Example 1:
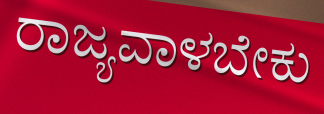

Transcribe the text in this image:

ರಾಜ್ಯವಾಳಬೇಕು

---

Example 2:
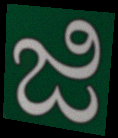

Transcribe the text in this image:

ಜಿ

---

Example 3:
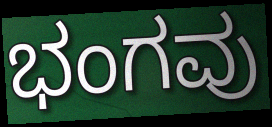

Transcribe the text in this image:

ಭಂಗವು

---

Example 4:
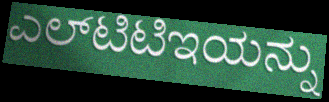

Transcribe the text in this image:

ಎಲ್‌ಟಿಟಿಇಯನ್ನು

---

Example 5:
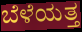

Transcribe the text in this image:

ಬೆಳೆಯತ್ತ